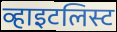
व्हाइटलिस्ट